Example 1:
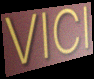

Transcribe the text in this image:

VICI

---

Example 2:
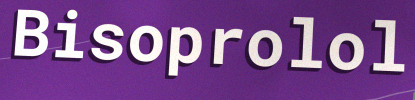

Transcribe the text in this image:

Bisoprolol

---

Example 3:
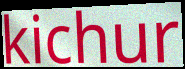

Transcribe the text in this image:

kichur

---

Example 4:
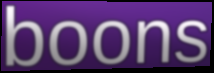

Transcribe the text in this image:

boons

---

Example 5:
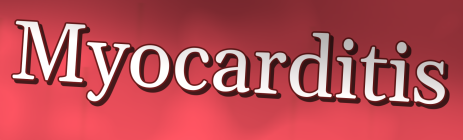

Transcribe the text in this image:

Myocarditis